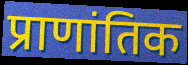
प्राणांतिक